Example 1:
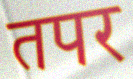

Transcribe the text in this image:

तपर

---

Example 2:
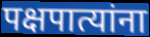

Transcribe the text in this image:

पक्षपात्यांना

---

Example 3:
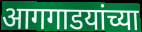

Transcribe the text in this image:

आगगाडयांच्या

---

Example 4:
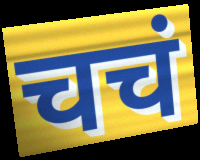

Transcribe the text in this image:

चचं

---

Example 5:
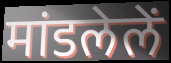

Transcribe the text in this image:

मांडलेलें